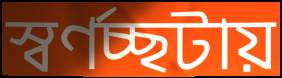
স্বর্ণচ্ছটায়